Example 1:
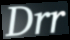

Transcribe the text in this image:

Drr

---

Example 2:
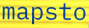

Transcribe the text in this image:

mapsto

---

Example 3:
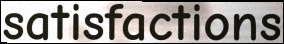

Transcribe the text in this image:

satisfactions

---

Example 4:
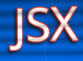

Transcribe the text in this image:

JSX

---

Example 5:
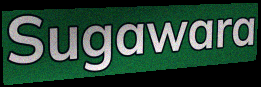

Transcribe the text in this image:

Sugawara